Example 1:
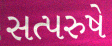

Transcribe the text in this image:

સત્પરુષે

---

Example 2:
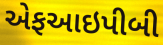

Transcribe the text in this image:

એફઆઇપીબી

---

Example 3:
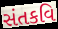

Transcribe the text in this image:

સંતકવિ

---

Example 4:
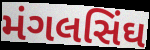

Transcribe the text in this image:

મંગલસિંઘ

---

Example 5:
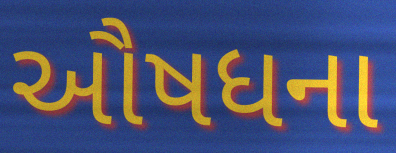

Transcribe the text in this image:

ઔષધના